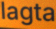
lagta